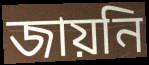
জায়নি